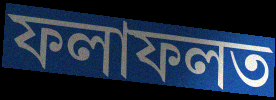
ফলাফলত